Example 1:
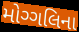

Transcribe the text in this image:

મોગ્ગલિના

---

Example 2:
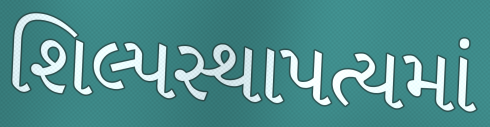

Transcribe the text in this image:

શિલ્પસ્થાપત્યમાં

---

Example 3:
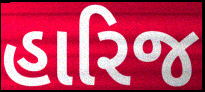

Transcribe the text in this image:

હારિજ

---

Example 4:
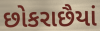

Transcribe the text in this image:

છોકરાછૈયાં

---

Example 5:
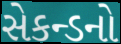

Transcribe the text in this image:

સેકન્ડનો